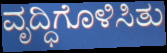
ವೃದ್ಧಿಗೊಳಿಸಿತು